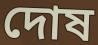
দোষ